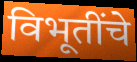
विभूतींचे